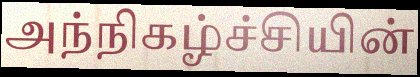
அந்நிகழ்ச்சியின்